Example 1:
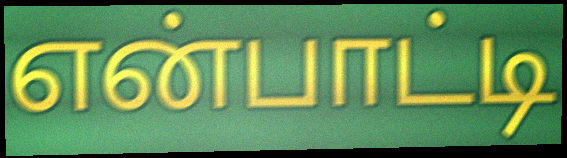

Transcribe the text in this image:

என்பாட்டி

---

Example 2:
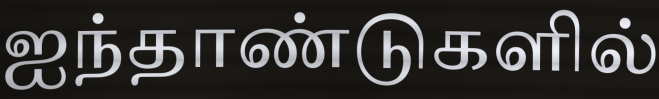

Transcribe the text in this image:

ஐந்தாண்டுகளில்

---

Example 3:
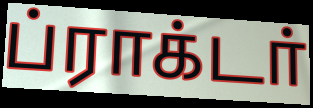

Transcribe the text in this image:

ப்ராக்டர்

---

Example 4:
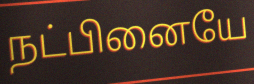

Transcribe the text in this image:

நட்பினையே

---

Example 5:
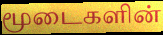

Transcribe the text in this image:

மூடைகளின்